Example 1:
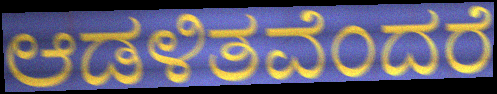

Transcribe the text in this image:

ಆಡಳಿತವೆಂದರೆ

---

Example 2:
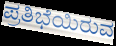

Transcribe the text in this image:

ಪ್ರತಿಭೆಯಿರುವ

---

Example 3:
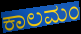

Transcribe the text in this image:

ಕಾಲಮಂ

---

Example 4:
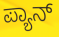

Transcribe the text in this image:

ಪ್ಯಾನ್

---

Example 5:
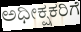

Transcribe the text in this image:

ಅಧೀಕ್ಷಕರಿಗೆ